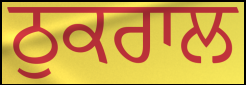
ਠੁਕਰਾਲ